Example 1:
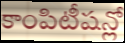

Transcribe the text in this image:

కాంపిటీషన్లో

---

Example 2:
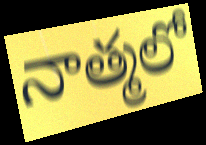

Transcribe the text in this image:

నాత్మలో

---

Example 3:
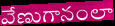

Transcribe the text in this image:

వేణుగానంలా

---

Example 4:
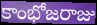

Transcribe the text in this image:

కాంభోజరాజు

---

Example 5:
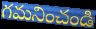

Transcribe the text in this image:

గమనించండి